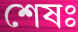
শেষঃ